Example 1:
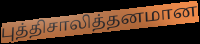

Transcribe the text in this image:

புத்திசாலித்தனமான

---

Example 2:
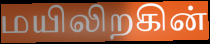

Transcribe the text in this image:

மயிலிறகின்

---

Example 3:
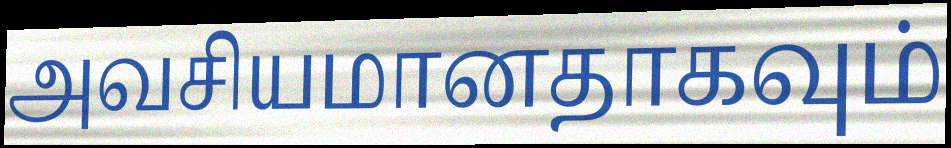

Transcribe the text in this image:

அவசியமானதாகவும்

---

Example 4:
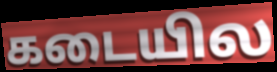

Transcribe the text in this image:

கடையில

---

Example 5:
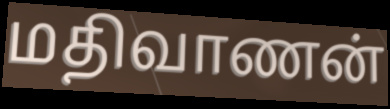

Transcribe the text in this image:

மதிவாணன்